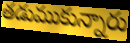
తడుముకున్నారు